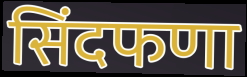
सिंदफणा